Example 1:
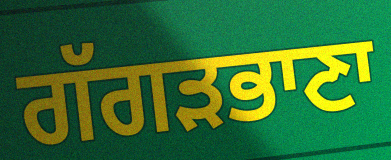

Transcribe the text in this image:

ਗੱਗੜਭਾਣਾ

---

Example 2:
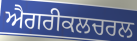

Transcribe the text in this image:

ਐਗਰੀਕਲਚਰਲ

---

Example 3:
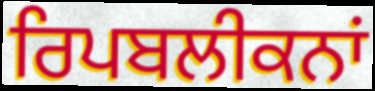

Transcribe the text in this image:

ਰਿਪਬਲੀਕਨਾਂ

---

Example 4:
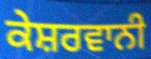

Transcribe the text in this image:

ਕੇਸ਼ਰਵਾਨੀ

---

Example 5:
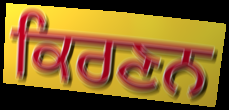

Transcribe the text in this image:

ਕਿਰਣਨ